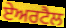
ਏਅਰਟੈਲ